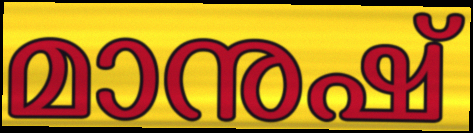
മാനുഷ്